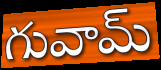
గువామ్